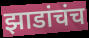
झाडांचंच